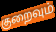
குறைவும்